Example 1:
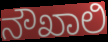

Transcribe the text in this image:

ನೌಖಾಲಿ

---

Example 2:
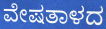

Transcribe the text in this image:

ವೇಷತಾಳದ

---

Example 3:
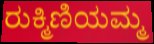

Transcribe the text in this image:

ರುಕ್ಮಿಣಿಯಮ್ಮ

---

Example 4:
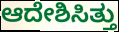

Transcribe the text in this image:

ಆದೇಶಿಸಿತ್ತು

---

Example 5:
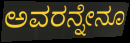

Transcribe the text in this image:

ಅವರನ್ನೇನೂ